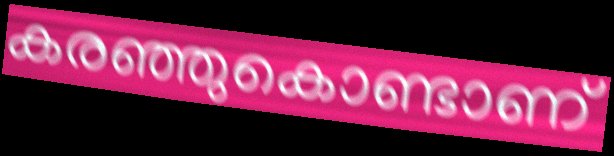
കരഞ്ഞുകൊണ്ടാണ്